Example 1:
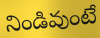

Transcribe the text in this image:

నిండివుంటే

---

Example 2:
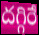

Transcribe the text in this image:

దగ్గిరే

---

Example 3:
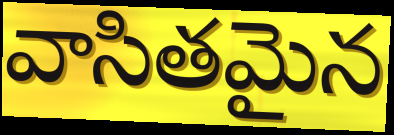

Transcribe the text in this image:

వాసితమైన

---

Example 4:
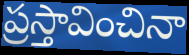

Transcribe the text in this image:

ప్రస్తావించినా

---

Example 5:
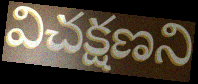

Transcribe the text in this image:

విచక్షణని